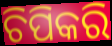
ଚିପିକରି